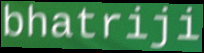
bhatriji